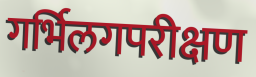
गर्भिलगपरीक्षण